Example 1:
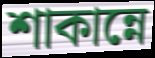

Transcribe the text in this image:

শাকান্নে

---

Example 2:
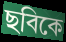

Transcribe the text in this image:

ছবিকে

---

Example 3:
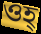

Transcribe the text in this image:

ওহ্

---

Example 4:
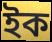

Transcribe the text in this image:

ইক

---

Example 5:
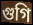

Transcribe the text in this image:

গুগি